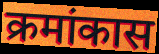
क्रमांकास